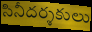
సినీదర్శకులు